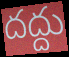
దద్దు